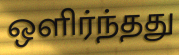
ஒளிர்ந்தது